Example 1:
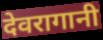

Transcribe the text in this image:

देवरागानी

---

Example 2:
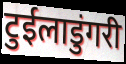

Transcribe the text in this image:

टुईलाडुंगरी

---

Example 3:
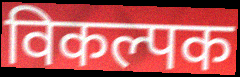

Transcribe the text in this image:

विकल्पक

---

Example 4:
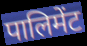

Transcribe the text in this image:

पालिमेंट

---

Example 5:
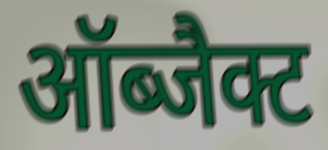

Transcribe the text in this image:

ऑब्जैक्ट